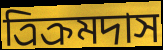
ত্রিক্রমদাস